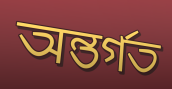
অন্তৰ্গত